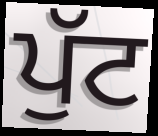
ਪੁੱਟ